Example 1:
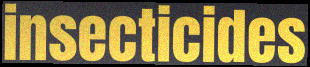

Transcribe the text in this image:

insecticides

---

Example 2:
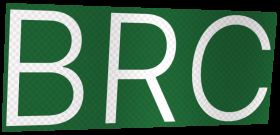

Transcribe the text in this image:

BRC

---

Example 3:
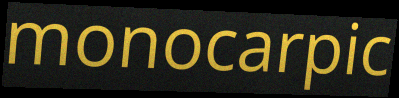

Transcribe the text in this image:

monocarpic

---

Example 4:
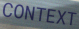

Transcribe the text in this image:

CONTEXT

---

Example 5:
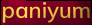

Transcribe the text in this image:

paniyum